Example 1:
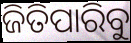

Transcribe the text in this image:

ଜିତିପାରିବୁ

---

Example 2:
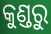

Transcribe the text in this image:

କୁଣ୍ଡରୁ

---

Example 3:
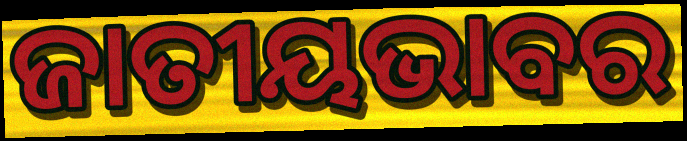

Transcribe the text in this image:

ଜାତୀୟଭାବର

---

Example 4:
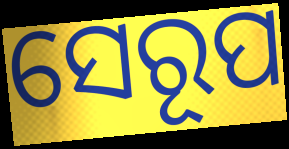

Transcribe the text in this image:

ସେରୂପ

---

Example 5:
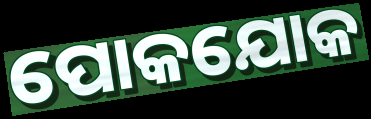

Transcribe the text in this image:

ପୋକଯୋକ